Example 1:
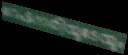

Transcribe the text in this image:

റേഷനരിയുടേയും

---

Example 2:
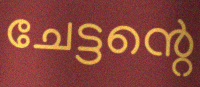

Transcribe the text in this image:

ചേട്ടന്റെ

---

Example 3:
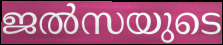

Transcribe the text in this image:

ജൽസയുടെ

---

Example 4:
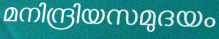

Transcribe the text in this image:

മനിന്ദ്രിയസമുദയം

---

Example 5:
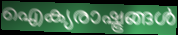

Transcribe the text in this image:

ഐക്യരാഷ്ട്രങ്ങൾ